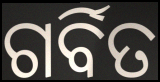
ଗର୍ବିତ